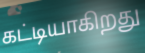
கட்டியாகிறது